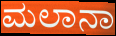
ಮಲಾನಾ